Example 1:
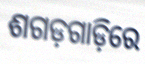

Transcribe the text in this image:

ଶଗଡ଼ଗାଡ଼ିରେ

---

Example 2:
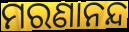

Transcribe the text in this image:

ମରଣାନନ୍ଦ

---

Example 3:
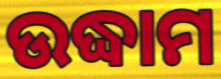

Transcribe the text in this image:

ଉଦ୍ଧାମ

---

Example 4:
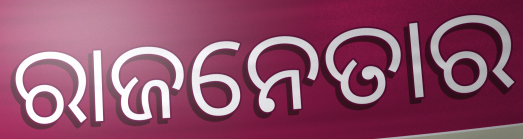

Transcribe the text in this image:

ରାଜନେତାର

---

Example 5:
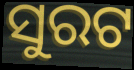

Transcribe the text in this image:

ସୁରଟ